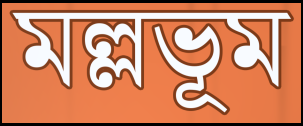
মল্লভূম